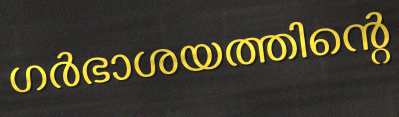
ഗർഭാശയത്തിന്റെ